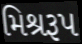
મિશ્રરૂપ